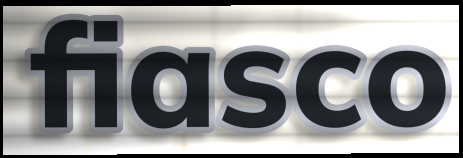
fiasco